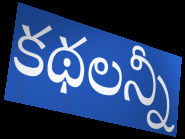
కథలన్నీ